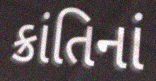
ક્રાંતિનાં